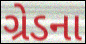
ગ્રેડના